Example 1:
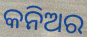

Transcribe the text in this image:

କନିଅର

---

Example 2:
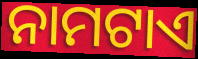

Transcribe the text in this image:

ନାମଟାଏ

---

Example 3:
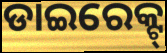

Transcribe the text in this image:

ଡାଇରେକ୍ଟ୍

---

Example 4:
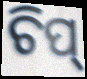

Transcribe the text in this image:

ଚିପ୍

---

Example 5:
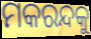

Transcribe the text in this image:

ମକରନ୍ଦକୁ